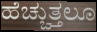
ಹೆಚ್ಚುತ್ತಲೂ